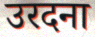
उरदना